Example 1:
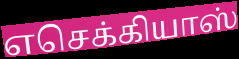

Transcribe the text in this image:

எசெக்கியாஸ்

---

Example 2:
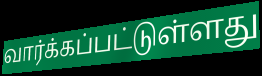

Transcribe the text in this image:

வார்க்கப்பட்டுள்ளது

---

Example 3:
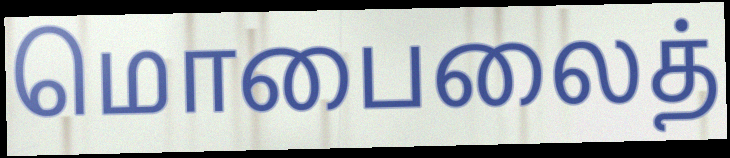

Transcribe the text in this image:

மொபைலைத்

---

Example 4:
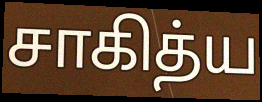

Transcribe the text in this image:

சாகித்ய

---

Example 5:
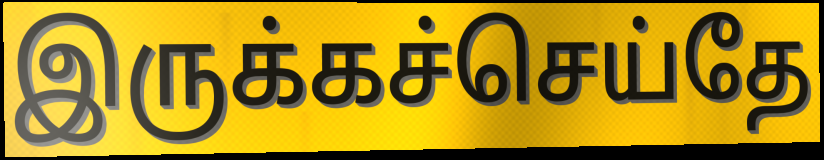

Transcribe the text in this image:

இருக்கச்செய்தே